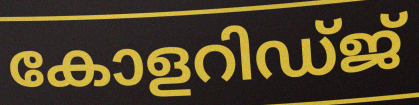
കോളറിഡ്ജ്